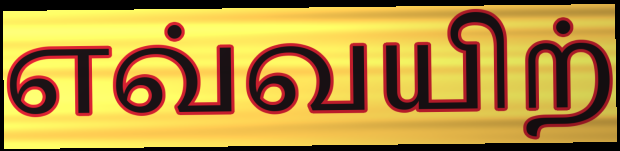
எவ்வயிற்